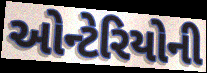
ઓન્ટેરિયોની